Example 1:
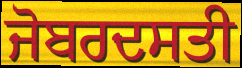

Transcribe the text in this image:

ਜੋਬਰਦਸਤੀ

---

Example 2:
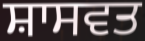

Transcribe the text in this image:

ਸ਼ਾਸਵਤ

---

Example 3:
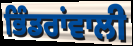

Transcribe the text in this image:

ਭਿੰਡਰਾਂਵਾਲੀ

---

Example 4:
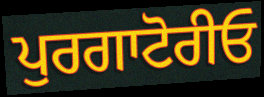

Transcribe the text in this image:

ਪੁਰਗਾਟੋਰੀਓ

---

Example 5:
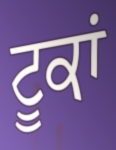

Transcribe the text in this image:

ਟੂਕਾਂ